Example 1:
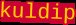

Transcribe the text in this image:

kuldip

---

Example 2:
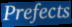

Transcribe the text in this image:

Prefects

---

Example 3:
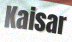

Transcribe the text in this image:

Kaisar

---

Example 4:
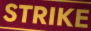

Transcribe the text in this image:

STRIKE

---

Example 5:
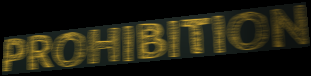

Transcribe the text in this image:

PROHIBITION